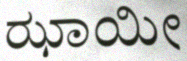
ಝಾಯೀ